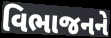
વિભાજનને